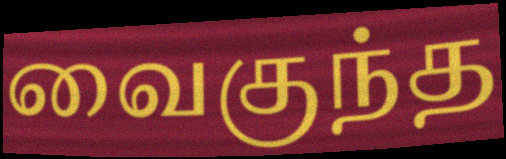
வைகுந்த